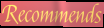
Recommends